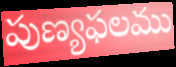
పుణ్యఫలము